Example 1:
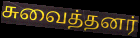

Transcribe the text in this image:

சுவைத்தனர்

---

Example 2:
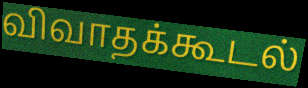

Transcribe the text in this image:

விவாதக்கூடல்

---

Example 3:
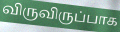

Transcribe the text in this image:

விருவிருப்பாக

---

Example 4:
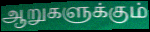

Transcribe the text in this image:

ஆறுகளுக்கும்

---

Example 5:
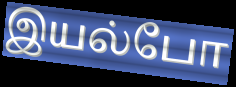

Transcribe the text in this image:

இயல்போ